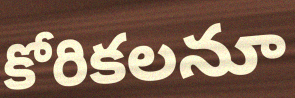
కోరికలనూ